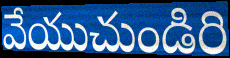
వేయుచుండిరి